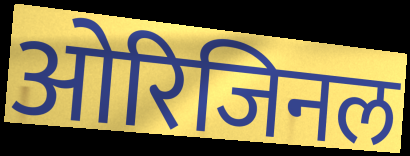
ओरिजिनल